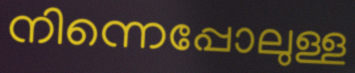
നിന്നെപ്പോലുള്ള